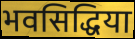
भवसिद्धिया